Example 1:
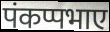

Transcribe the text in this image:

पंकप्पभाए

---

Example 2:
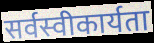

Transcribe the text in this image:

सर्वस्वीकार्यता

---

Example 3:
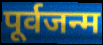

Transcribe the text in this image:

पूर्वजन्म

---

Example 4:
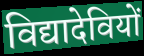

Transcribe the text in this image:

विद्यादेवियों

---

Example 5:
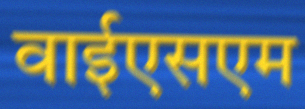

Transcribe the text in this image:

वाईएसएम